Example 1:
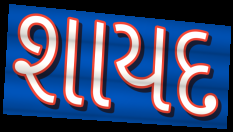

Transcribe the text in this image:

શાયદ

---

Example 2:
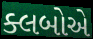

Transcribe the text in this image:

ક્લબોએ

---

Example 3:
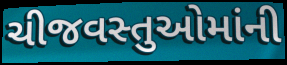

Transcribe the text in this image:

ચીજવસ્તુઓમાંની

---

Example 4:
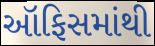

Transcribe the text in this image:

ઑફિસમાંથી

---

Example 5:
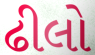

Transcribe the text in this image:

ઢીલો